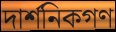
দার্শনিকগণ